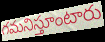
గమనిస్తూంటారు